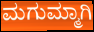
ಮಗುಮ್ಮಾಗಿ